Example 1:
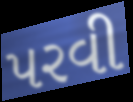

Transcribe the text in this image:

પરવી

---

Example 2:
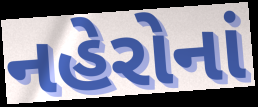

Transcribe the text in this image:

નહેરોનાં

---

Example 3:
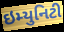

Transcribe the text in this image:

ઇમ્યુનિટી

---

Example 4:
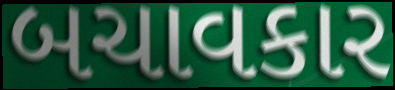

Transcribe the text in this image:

બચાવકાર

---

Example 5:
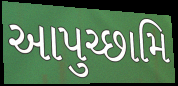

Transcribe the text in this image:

આપુચ્છામિ